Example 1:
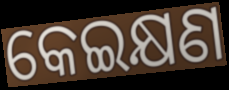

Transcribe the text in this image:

କେଇକ୍ଷଣ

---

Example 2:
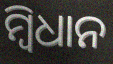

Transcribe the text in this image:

ମ୍ବିଧାନ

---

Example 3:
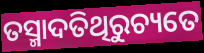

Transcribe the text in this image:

ତସ୍ମାଦତିଥିରୁଚ୍ୟତେ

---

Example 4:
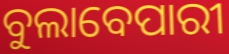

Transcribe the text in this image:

ବୁଲାବେପାରୀ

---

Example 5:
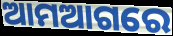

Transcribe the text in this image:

ଆମଆଗରେ